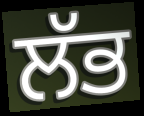
ਲੱਭ